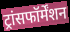
ट्रांसफॉर्मेंशन